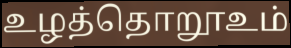
உழத்தொறூஉம்